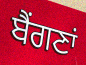
ਬੈਂਗਣਾਂ